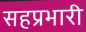
सहप्रभारी